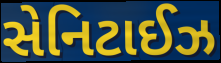
સેનિટાઈઝ